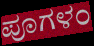
ಪೂಗಳಂ